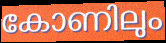
കോണിലും